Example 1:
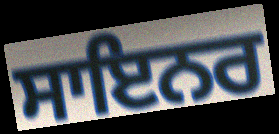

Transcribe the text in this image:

ਸਾਇਨਰ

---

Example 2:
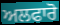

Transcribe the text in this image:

ਅਲਫਾਰੋ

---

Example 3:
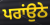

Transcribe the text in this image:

ਪਰਾਂਉਠੇ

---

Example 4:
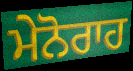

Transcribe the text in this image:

ਮੇਨੋਰਾਹ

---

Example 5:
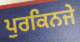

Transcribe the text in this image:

ਪੁਰਕਿਨਜੇ